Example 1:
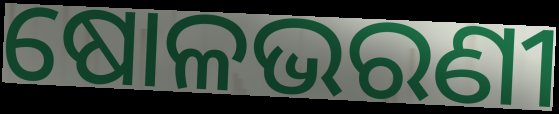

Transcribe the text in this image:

ଷୋଳଭରଣୀ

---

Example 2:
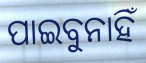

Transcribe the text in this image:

ପାଇବୁନାହିଁ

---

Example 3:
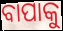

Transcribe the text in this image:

ବାପାକୁ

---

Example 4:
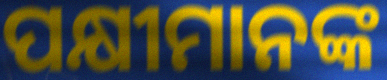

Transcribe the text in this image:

ପକ୍ଷୀମାନଙ୍କ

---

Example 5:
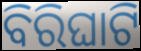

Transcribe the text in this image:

ବିରିଘାଟି